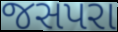
જસપરા